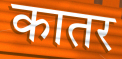
कातर